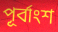
পূৰ্বাংশ